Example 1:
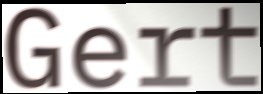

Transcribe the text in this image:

Gert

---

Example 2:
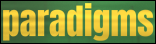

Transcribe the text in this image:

paradigms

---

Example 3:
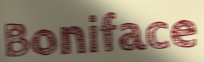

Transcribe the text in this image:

Boniface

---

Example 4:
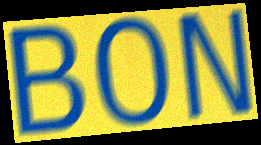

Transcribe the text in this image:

BON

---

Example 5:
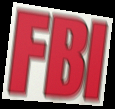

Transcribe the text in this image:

FBI